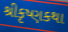
શ્રીકૃષ્ણકથા